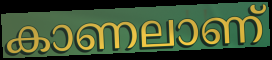
കാണലാണ്